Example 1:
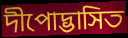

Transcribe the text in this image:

দীপোদ্ভাসিত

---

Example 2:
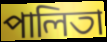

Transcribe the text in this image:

পালিতা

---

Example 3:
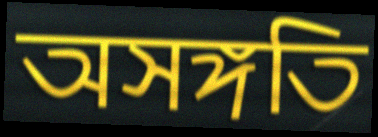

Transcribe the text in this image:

অসঙ্গতি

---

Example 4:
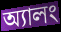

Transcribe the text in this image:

অ্যালং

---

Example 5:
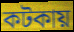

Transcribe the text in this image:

কটকায়